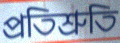
প্ৰতিশ্ৰুতি